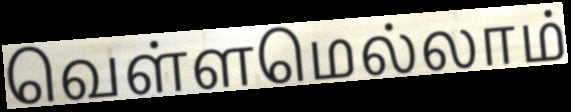
வெள்ளமெல்லாம்